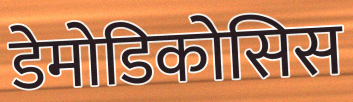
डेमोडिकोसिस